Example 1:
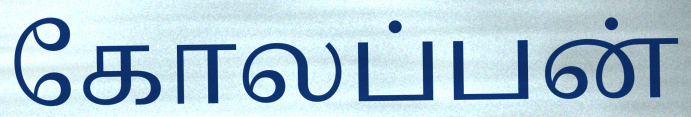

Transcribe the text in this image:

கோலப்பன்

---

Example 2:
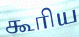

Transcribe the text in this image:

கூரிய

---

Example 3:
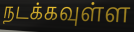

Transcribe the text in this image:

நடக்கவுள்ள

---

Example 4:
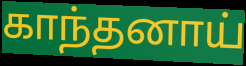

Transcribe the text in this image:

காந்தனாய்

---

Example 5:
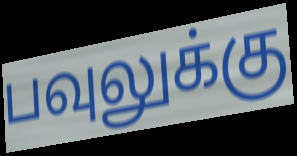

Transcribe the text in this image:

பவுலுக்கு